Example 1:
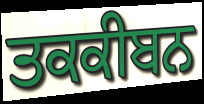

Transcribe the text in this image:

ਤਕਕੀਬਨ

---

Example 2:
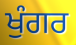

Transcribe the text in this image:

ਖੁੰਗਰ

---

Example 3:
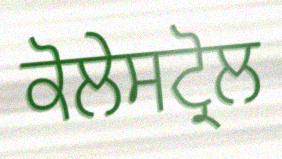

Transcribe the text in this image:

ਕੋਲੇਸਟ੍ਰੋਲ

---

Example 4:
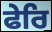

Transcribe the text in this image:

ਫੇਰਿ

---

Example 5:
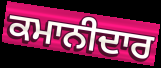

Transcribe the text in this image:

ਕਮਾਨੀਦਾਰ